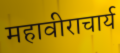
महावीराचार्य